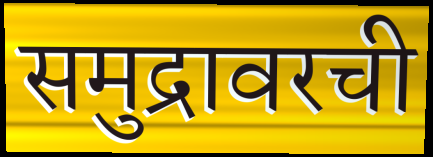
समुद्रावरची